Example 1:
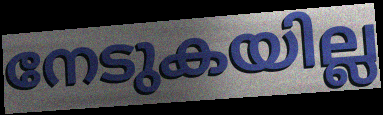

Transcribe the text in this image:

നേടുകയില്ല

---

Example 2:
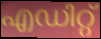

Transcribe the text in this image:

എഡിറ്റ്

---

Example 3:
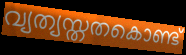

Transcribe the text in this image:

വ്യത്യസ്തതകൊണ്ട്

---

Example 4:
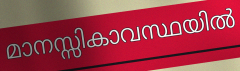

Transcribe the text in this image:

മാനസ്സികാവസ്ഥയിൽ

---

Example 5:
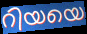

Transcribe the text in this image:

റിയയെ